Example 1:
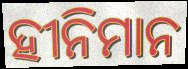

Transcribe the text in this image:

ହୀନିମାନ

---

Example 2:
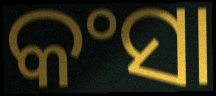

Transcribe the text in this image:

କଂସା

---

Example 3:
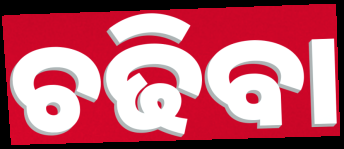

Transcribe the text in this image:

ଚଢିବା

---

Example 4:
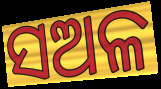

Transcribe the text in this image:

ସଅଳ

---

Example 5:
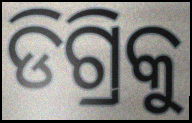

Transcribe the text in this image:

ଡିଗ୍ରିକୁ